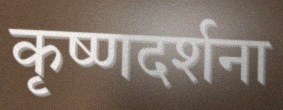
कृष्णदर्शना